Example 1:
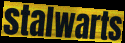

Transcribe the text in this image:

stalwarts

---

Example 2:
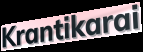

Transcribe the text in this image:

Krantikarai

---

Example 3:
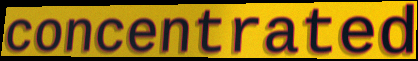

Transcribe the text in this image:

concentrated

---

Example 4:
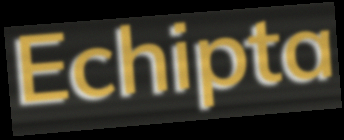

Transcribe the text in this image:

Echipta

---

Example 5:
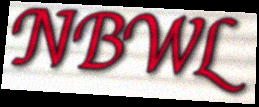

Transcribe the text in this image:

NBWL